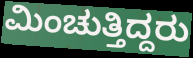
ಮಿಂಚುತ್ತಿದ್ದರು